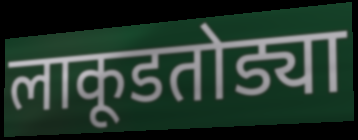
लाकूडतोड्या